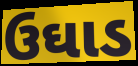
ઉઘાડ